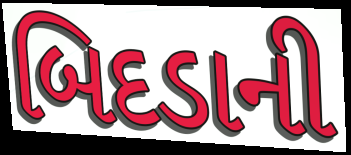
બિદડાની